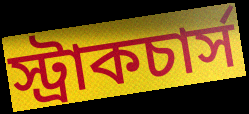
স্ট্রাকচার্স